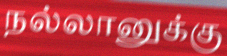
நல்லானுக்கு